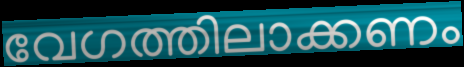
വേഗത്തിലാക്കണം